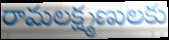
రామలక్ష్మణులకు